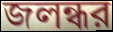
জলন্ধর